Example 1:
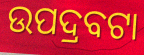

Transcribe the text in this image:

ଉପଦ୍ରବଟା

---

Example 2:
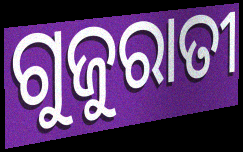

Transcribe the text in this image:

ଗୁଜୁରାତୀ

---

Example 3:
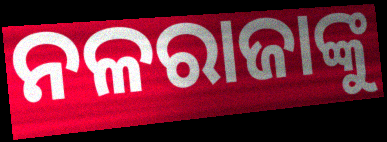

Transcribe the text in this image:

ନଳରାଜାଙ୍କୁ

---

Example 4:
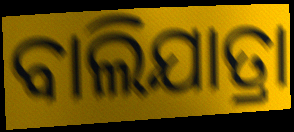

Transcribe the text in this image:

ବାଲିଯାତ୍ରା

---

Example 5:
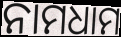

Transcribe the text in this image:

ନାମଧାମ